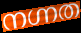
നഗ്നത